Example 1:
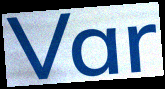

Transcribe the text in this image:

Var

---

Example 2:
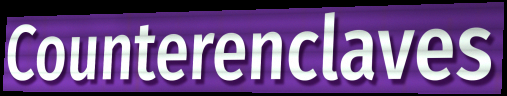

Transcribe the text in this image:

Counterenclaves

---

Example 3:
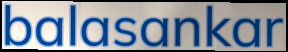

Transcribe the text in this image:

balasankar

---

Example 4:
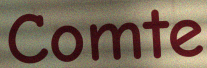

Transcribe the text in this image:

Comte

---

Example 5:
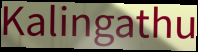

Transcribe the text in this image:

Kalingathu